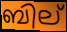
ബില്